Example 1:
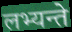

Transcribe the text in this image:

लभ्यन्ते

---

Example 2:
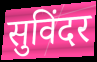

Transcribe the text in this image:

सुविंदर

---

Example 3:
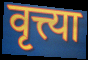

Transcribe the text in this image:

वृत्त्या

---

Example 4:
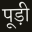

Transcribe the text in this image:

पूड़ी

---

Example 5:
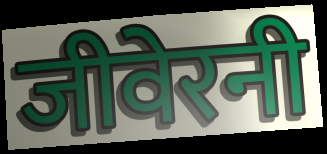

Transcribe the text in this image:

जीवेरनी